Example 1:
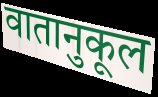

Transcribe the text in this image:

वातानुकूल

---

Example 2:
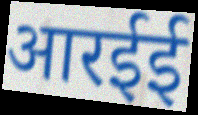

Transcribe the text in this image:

आरईई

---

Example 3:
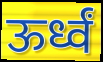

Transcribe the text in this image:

ऊर्ध्वं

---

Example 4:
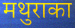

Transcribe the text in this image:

मथुराका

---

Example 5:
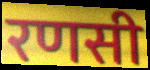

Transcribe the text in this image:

रणसी